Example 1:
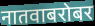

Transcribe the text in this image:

नातवाबरोबर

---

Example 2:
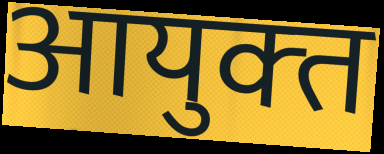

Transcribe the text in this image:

आयुक्‍त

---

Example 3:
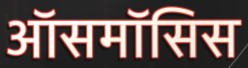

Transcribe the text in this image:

ऑसमॉसिस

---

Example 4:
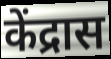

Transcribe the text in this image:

केंद्रास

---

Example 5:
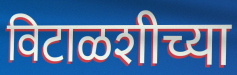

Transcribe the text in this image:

विटाळशीच्या